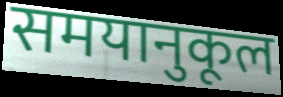
समयानुकूल